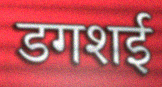
डगशई